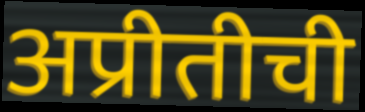
अप्रीतीची